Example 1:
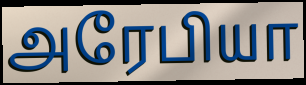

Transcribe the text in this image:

அரேபியா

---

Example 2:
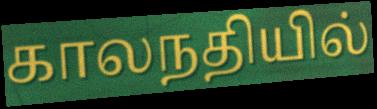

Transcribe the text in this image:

காலநதியில்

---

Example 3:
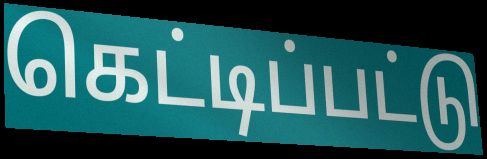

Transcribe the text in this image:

கெட்டிப்பட்டு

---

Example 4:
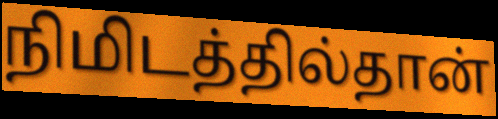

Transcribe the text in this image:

நிமிடத்தில்தான்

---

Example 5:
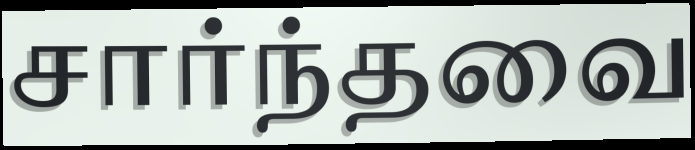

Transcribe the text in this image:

சார்ந்தவை